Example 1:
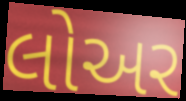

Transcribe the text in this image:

લોઅર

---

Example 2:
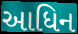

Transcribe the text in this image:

આધિન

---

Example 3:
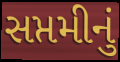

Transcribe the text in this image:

સપ્તમીનું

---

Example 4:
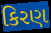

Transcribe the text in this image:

કિરણ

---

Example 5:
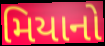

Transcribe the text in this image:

મિયાનો